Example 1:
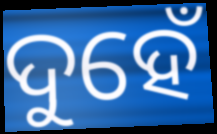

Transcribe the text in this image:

ଦୁହେଁ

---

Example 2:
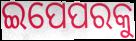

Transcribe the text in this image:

ଇପେପରକୁ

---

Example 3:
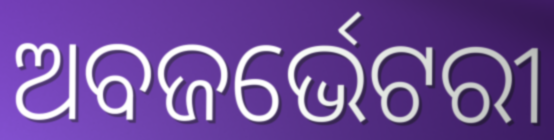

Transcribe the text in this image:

ଅବଜର୍ଭେଟରୀ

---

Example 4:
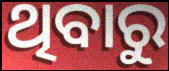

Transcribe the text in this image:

ଥିବାରୁ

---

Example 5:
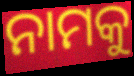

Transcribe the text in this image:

ନାମକୁ